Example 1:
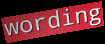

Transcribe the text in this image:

wording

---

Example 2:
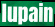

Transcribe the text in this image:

lupain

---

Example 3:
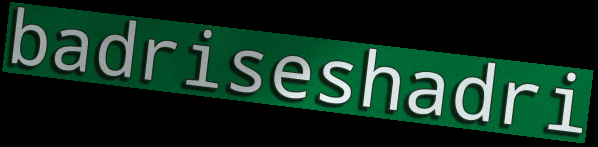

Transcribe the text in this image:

badriseshadri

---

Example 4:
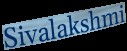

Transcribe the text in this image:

Sivalakshmi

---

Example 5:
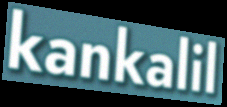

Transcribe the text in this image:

kankalil